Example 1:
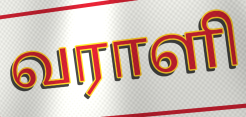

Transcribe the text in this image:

வராளி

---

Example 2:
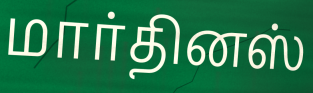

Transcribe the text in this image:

மார்தினஸ்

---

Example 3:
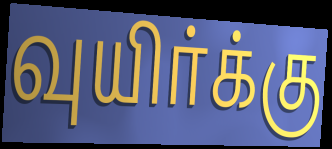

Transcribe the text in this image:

வுயிர்க்கு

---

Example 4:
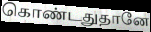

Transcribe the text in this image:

கொண்டதுதானே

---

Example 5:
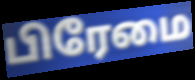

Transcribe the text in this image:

பிரேமை